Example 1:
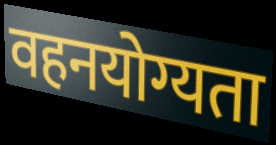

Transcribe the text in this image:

वहनयोग्यता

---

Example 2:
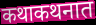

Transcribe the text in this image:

कथाकथनात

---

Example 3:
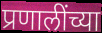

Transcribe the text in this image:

प्रणालींच्या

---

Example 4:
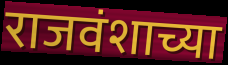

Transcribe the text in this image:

राजवंशाच्या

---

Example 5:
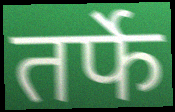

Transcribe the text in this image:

तर्फे